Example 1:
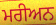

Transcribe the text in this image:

ਮਰੀਅਨ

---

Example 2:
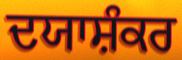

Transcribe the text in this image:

ਦਯਾਸ਼ੰਕਰ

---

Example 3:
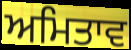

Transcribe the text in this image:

ਅਮਿਤਾਵ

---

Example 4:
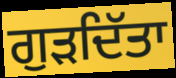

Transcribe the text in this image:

ਗੁੜਦਿੱਤਾ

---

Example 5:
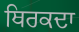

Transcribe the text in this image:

ਥਿਰਕਦਾ